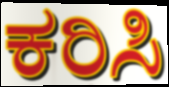
ಕರಿಸಿ